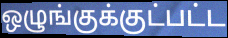
ஒழுங்குக்குட்பட்ட